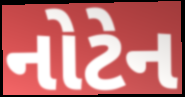
નોટેન